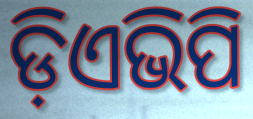
ଡ଼ିଏଭିପି